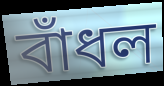
বাঁধল